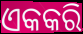
ଏକକରି